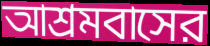
আশ্রমবাসের